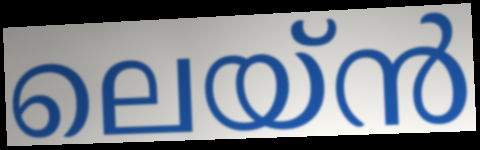
ലെയ്ൻ